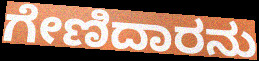
ಗೇಣಿದಾರನು